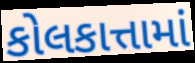
કોલકાત્તામાં